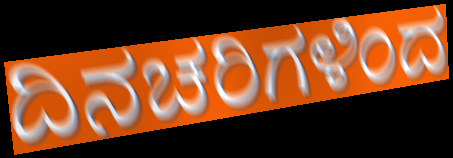
ದಿನಚರಿಗಳಿಂದ